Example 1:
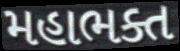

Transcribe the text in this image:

મહાભક્ત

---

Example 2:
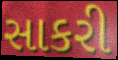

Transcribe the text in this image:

સાકરી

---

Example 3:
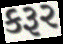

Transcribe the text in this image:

કરૂર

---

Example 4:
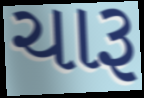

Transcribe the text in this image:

ચારૂ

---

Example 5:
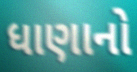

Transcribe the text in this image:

ધાણાનો